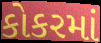
કોકરમાં